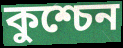
কুশ্চেন